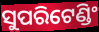
ସୁପରିଟେଣ୍ଡିଂ